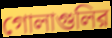
গোলাগুলির